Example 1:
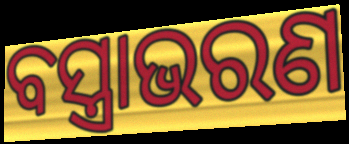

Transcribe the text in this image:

ବସ୍ତ୍ରାଭରଣ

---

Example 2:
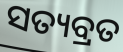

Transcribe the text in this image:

ସତ୍ୟବ୍ରତ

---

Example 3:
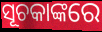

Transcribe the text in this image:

ସୂଚକାଙ୍କରେ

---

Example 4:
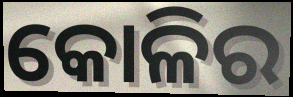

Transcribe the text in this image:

କୋଳିର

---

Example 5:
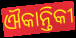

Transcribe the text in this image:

ଐକାନ୍ତିକୀ